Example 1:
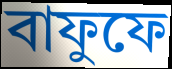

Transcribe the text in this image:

বাফুফে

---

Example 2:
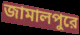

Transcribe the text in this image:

জামালপুরে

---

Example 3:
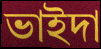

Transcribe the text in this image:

ভাইদা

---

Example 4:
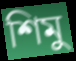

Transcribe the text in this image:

শিমু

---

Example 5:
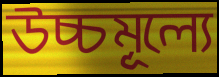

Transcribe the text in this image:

উচ্চমূল্যে